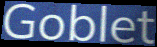
Goblet